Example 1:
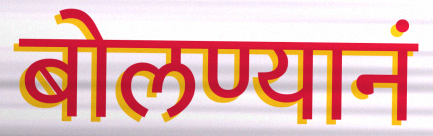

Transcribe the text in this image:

बोलण्यानं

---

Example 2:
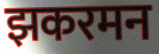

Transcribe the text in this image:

झकरमन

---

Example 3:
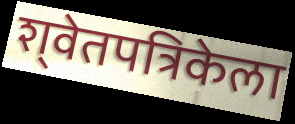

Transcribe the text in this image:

श्वेतपत्रिकेला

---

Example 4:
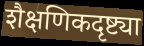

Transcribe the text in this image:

शैक्षणिकदृष्ट्या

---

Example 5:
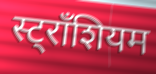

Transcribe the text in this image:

स्ट्राँशियम